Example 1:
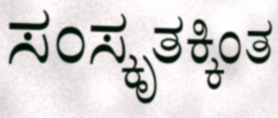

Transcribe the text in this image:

ಸಂಸ್ಕೃತಕ್ಕಿಂತ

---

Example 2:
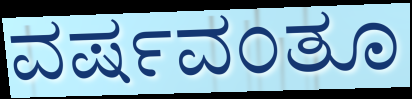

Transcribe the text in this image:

ವರ್ಷವಂತೂ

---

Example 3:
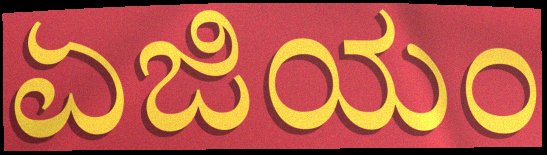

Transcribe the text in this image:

ಏಜಿಯಂ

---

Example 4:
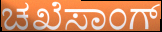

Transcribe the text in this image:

ಚಖೆಸಾಂಗ್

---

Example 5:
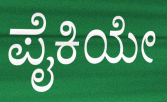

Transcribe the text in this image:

ಪೈಕಿಯೇ